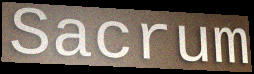
Sacrum